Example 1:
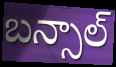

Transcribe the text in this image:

బన్సాల్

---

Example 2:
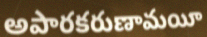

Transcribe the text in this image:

అపారకరుణామయీ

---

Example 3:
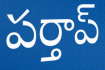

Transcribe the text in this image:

పర్తాప్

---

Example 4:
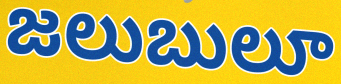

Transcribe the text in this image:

జలుబులూ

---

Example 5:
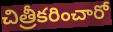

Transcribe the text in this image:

చిత్రీకరించారో